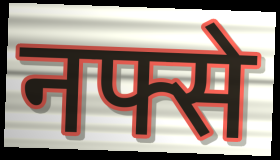
नफ्से